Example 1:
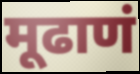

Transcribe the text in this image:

मूढाणं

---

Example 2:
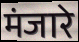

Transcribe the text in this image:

मंजारे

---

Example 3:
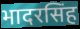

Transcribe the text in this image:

भादरसिंह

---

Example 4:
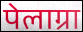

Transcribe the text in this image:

पेलाग्रा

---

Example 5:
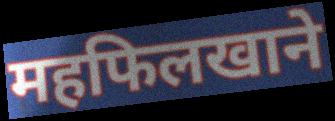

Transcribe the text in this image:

महफिलखाने